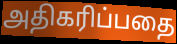
அதிகரிப்பதை